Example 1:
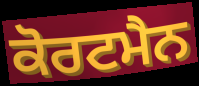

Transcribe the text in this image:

ਕੋਰਟਮੈਨ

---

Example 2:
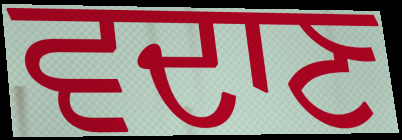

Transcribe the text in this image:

ਵਦਾਣ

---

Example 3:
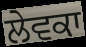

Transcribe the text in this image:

ਲੇਵਕਾ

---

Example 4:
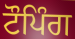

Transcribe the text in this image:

ਟੌਪਿੰਗ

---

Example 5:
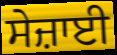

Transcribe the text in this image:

ਸੇਜ਼ਾਈ